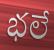
భలే